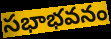
సభాభవనం